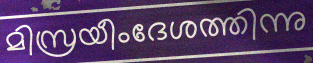
മിസ്രയീംദേശത്തിന്നു